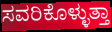
ಸವರಿಕೊಳ್ಳುತ್ತಾ